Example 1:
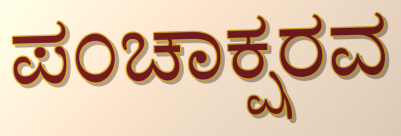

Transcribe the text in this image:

ಪಂಚಾಕ್ಷರವ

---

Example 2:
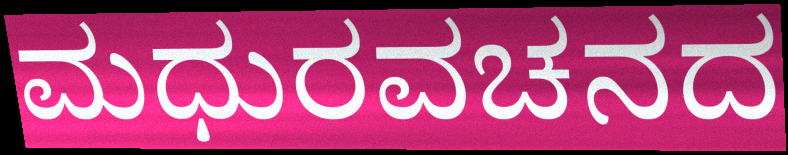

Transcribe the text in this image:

ಮಧುರವಚನದ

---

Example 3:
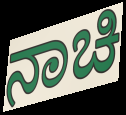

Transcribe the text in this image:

ನಾಚಿ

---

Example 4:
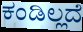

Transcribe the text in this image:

ಕಂಡಿಲ್ಲದೆ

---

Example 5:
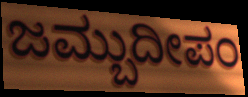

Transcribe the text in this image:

ಜಮ್ಬುದೀಪಂ